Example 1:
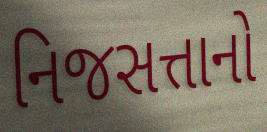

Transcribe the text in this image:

નિજસત્તાનો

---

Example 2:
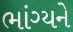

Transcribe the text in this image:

ભાંગ્યને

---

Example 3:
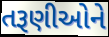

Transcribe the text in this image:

તરૂણીઓને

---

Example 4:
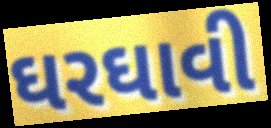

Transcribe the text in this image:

ઘરઘાવી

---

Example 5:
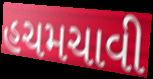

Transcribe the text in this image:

હચમચાવી